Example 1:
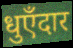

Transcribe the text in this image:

धुएँदार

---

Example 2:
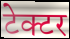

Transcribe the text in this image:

टेक्टर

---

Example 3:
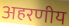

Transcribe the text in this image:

अहरणीय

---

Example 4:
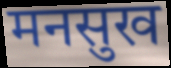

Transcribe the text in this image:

मनसुख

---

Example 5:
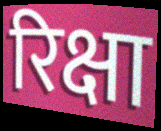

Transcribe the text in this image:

रिक्षा